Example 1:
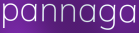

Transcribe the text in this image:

pannaga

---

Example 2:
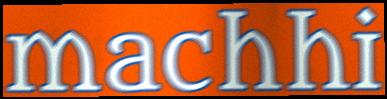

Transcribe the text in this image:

machhi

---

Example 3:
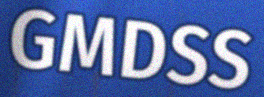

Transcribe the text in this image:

GMDSS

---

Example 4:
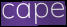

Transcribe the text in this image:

cape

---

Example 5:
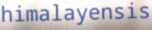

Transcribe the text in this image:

himalayensis